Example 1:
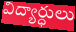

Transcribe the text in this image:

విద్యార్ధులు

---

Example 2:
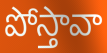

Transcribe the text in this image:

పోస్తావా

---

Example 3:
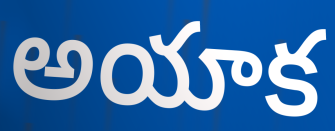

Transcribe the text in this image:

అయాక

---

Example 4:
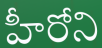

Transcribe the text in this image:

హీరోని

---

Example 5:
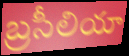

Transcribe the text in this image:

బ్రసీలియా